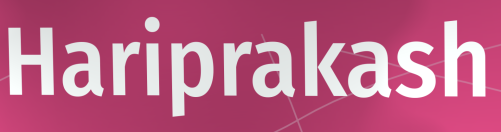
Hariprakash